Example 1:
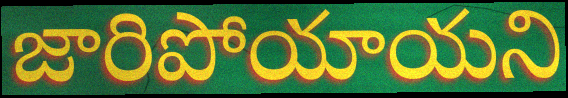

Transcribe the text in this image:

జారిపోయాయని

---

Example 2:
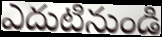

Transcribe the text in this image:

ఎదుటినుండి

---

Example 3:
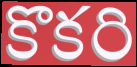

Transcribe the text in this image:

కొకరి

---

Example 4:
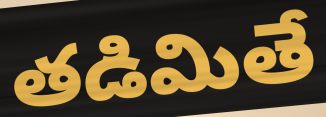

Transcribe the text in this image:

తడిమితే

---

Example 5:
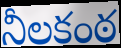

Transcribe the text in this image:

నీలకంఠ